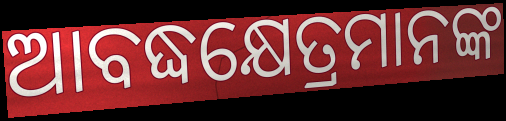
ଆବଦ୍ଧକ୍ଷେତ୍ରମାନଙ୍କ